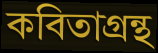
কবিতাগ্রন্থ